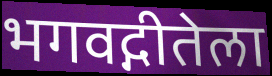
भगवद्गीतेला